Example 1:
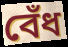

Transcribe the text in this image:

বেঁধ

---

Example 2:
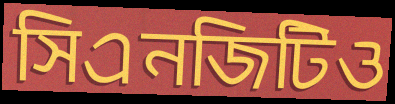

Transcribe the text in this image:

সিএনজিটিও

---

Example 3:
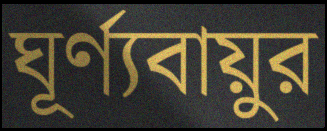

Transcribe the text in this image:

ঘূর্ণ্যবায়ুর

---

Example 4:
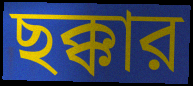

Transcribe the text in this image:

ছক্কার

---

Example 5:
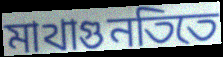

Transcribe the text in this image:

মাথাগুনতিতে